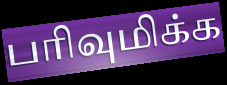
பரிவுமிக்க